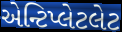
એન્ટિપ્લેટલેટ